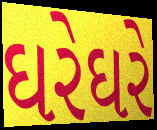
ઘરેઘરે